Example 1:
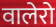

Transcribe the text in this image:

वालेरो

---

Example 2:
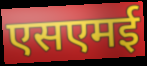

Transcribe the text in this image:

एसएमई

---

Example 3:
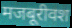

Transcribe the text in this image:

मजबूरीवश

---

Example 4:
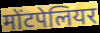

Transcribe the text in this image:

मोंटपेलियर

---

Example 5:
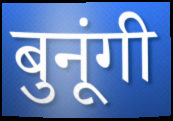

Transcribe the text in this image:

बुनूंगी